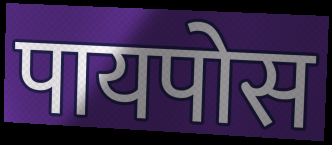
पायपोस